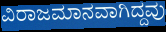
ವಿರಾಜಮಾನವಾಗಿದ್ದವು